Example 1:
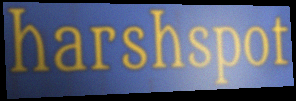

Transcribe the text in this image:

harshspot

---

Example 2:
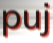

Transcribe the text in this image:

puj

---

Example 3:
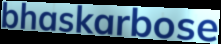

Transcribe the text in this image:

bhaskarbose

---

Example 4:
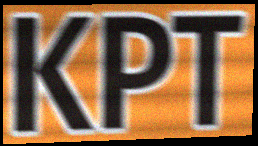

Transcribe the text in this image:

KPT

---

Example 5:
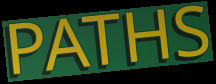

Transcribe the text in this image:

PATHS